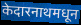
केदारनाथमधून